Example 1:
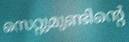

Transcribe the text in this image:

സെറ്റുമുണ്ടിന്റെ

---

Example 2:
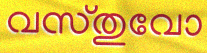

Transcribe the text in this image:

വസ്തുവോ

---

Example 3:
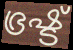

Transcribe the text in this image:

ഭ്രഷ്ട്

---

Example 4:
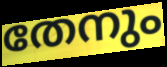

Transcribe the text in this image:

തേനും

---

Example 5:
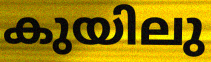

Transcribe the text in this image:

കുയിലു